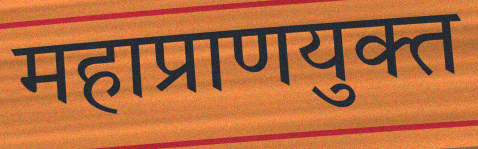
महाप्राणयुक्त